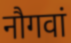
नौगवां